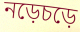
নড়েচড়ে